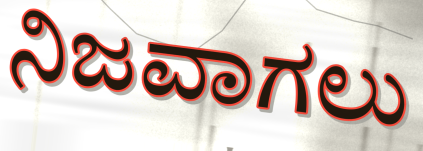
ನಿಜವಾಗಲು